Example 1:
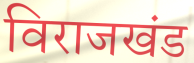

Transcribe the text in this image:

विराजखंड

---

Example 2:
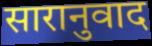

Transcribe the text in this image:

सारानुवाद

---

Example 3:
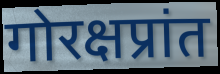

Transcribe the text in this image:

गोरक्षप्रांत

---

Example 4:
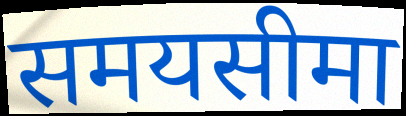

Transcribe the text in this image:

समयसीमा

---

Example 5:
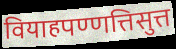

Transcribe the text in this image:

वियाहपण्णत्तिसुत्त